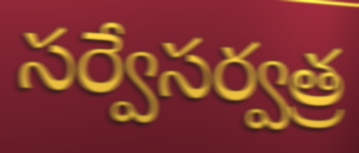
సర్వేసర్వత్ర